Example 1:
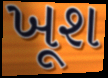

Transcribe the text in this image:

ખૂશ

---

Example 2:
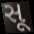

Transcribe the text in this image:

સૂ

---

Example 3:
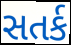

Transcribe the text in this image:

સતર્ક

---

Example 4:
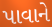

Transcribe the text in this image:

પાવાને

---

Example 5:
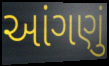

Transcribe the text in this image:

આંગણું